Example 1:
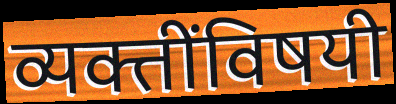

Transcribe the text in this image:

व्यक्तींविषयी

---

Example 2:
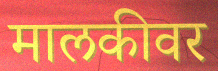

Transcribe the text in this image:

मालकीवर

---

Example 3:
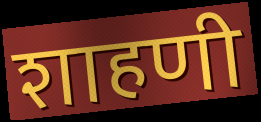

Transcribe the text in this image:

शाहणी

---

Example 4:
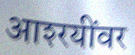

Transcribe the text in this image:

आश्रयींवर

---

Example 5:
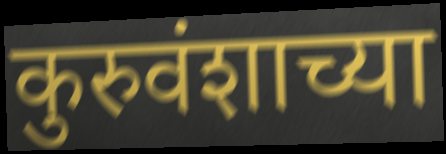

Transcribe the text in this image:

कुरुवंशाच्या